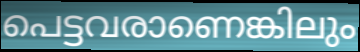
പെട്ടവരാണെങ്കിലും